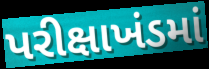
પરીક્ષાખંડમાં